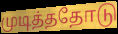
முடித்ததோடு